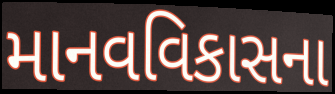
માનવવિકાસના